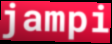
jampi